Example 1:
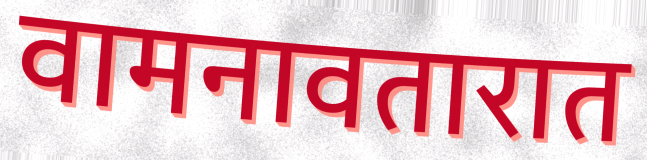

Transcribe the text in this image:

वामनावतारात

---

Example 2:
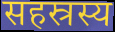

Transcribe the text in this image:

सहस्रस्य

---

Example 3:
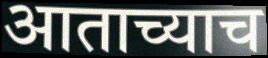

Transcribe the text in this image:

आताच्याच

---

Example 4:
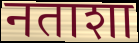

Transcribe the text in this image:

नताशा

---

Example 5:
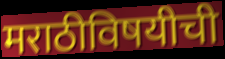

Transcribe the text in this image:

मराठीविषयीची